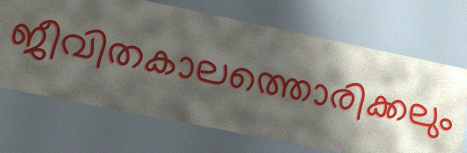
ജീവിതകാലത്തൊരിക്കലും